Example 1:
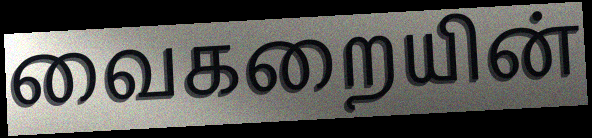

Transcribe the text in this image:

வைகறையின்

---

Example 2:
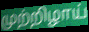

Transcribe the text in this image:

முற்றிழாய்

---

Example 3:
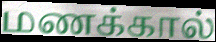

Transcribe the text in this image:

மணக்கால்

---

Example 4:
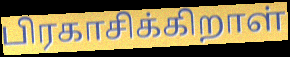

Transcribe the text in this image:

பிரகாசிக்கிறாள்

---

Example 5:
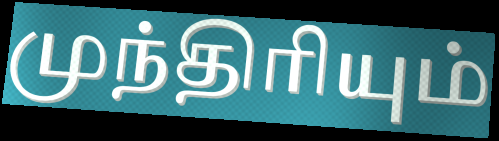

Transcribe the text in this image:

முந்திரியும்